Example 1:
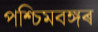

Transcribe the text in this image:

পশ্চিমবঙ্গৰ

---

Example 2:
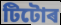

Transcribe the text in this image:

টিটোৰ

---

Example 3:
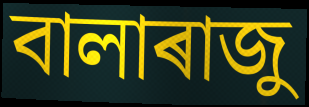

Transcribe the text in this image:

বালাৰাজু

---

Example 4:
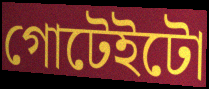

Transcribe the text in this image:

গোটেইটো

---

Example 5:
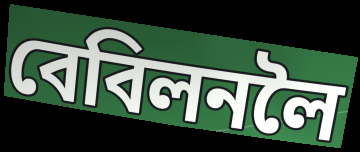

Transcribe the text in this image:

বেবিলনলৈ